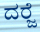
ದರ‍್ಜೆ